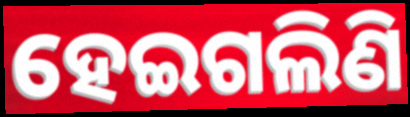
ହେଇଗଲିଣି